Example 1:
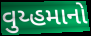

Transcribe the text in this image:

વુય્હમાનો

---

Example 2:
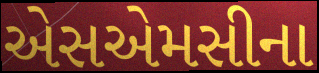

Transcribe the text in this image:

એસએમસીના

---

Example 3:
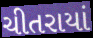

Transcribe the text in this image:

ચીતરાયાં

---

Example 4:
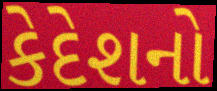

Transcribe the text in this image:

કેદેશનો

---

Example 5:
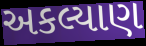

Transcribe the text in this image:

અકલ્યાણ